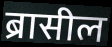
ब्रासील